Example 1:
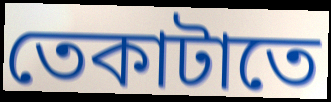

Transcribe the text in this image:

তেকাটাতে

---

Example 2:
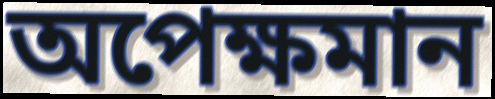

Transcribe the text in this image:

অপেক্ষমান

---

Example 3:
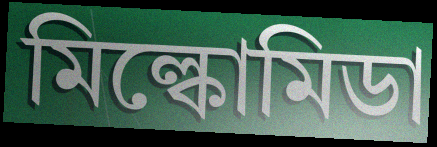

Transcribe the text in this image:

মিল্কোমিডা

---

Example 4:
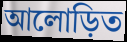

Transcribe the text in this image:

আলোড়িত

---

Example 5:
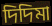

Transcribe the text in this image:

দিদিমা